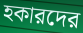
হকারদের